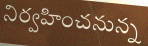
నిర్వహించనున్న